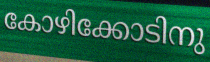
കോഴിക്കോടിനു